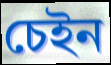
চেইন